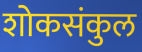
शोकसंकुल